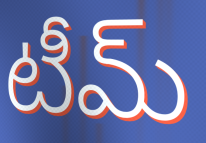
టీమ్